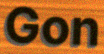
Gon